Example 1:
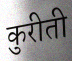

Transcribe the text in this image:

कुरीती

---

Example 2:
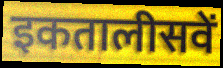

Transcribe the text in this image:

इकतालीसवें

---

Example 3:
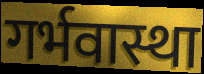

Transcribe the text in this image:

गर्भवास्था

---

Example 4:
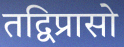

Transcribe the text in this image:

तद्विप्रासो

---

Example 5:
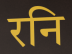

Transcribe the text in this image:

रनि